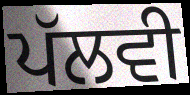
ਪੱਲਵੀ